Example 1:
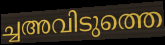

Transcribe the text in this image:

ച്ചഅവിടുത്തെ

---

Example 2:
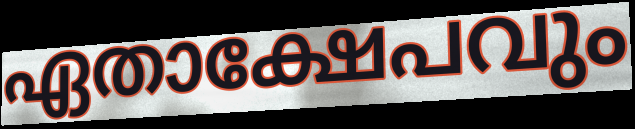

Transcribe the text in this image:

ഏതാക്ഷേപവും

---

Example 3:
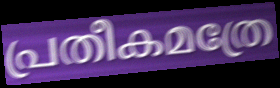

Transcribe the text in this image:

പ്രതീകമത്രേ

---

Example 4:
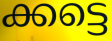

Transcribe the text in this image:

ക്കട്ടെ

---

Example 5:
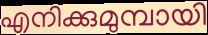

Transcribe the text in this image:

എനിക്കുമുമ്പായി